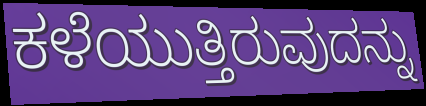
ಕಳೆಯುತ್ತಿರುವುದನ್ನು